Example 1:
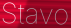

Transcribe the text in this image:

Stavo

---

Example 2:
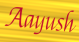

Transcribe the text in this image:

Aayush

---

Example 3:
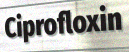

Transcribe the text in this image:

Ciprofloxin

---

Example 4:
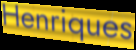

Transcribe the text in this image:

Henriques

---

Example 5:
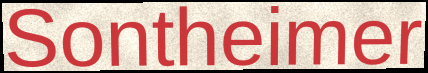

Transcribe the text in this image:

Sontheimer